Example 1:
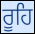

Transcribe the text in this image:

ਰੂਹਿ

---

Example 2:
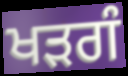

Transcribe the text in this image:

ਖੜਗੰ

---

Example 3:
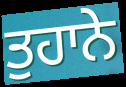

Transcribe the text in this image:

ਤੁਹਾਨੇ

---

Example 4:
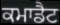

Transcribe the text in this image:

ਕਮਾਡੈਟ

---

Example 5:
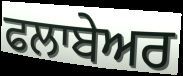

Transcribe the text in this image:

ਫਲਾਬੇਅਰ